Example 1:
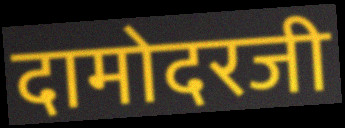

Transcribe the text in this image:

दामोदरजी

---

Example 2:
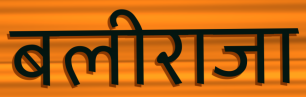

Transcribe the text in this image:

बलीराजा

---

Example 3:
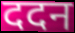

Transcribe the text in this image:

ददन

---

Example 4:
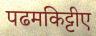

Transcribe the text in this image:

पढमकिट्टीए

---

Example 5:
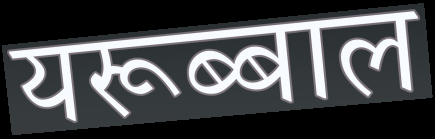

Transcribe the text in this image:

यरूब्बाल